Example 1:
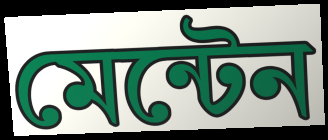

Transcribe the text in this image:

মেন্টেন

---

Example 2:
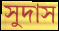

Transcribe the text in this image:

সুদাস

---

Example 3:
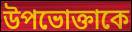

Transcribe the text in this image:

উপভোক্তাকে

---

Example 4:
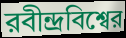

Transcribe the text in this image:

রবীন্দ্রবিশ্বের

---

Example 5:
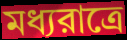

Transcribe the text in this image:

মধ্যরাত্রে